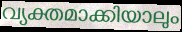
വ്യക്തമാക്കിയാലും